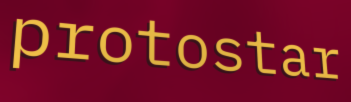
protostar